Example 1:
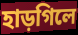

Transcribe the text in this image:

হাড়গিলে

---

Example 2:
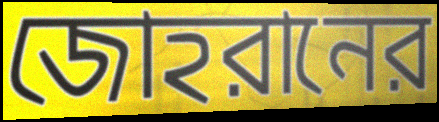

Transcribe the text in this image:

জোহরানের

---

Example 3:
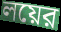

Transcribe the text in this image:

লয়ের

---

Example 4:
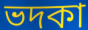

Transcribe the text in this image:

ভদকা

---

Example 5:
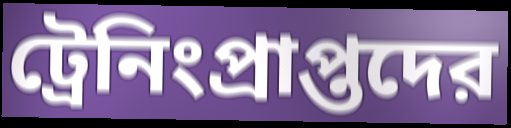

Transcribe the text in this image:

ট্রেনিংপ্রাপ্তদের